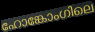
ഹോങ്കോംഗിലെ